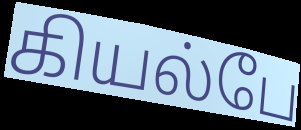
கியல்பே